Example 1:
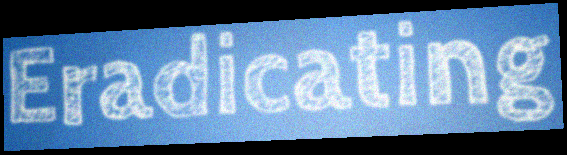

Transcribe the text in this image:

Eradicating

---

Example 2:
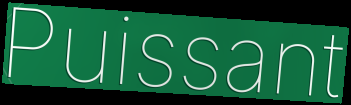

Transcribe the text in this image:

Puissant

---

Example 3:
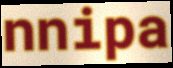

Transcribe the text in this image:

nnipa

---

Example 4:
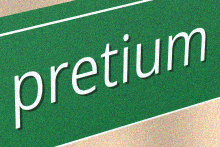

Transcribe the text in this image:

pretium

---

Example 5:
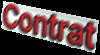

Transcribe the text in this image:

Contrat